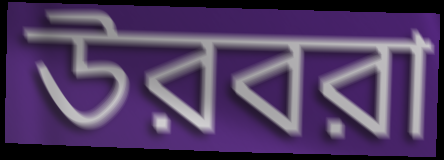
উরবরা